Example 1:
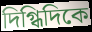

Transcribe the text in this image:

দিগ্ধিদিকে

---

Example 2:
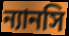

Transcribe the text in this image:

ন্যানসি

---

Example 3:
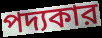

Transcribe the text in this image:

পদ্যকার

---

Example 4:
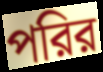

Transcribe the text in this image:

পরির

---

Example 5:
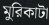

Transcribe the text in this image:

মুরিকাটা